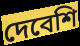
দেবেশি